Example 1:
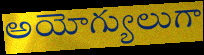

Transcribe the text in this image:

అయోగ్యులుగా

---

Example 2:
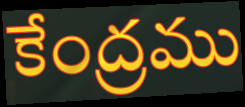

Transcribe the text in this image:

కేంద్రము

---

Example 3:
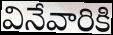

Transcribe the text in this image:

వినేవారికి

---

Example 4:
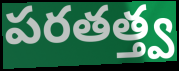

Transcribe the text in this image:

పరతత్త్వ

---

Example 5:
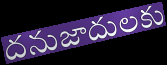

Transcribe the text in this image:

దనుజాదులకు